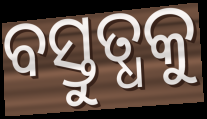
ବସ୍ତୁତ୍ଧକୁ